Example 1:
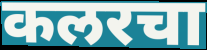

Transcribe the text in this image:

कलरचा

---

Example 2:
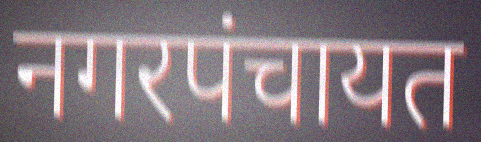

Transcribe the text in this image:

नगरपंचायत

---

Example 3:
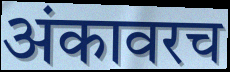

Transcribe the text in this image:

अंकावरच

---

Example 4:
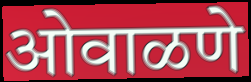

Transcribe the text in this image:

ओवाळणे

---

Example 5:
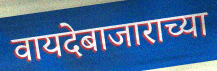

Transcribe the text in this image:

वायदेबाजाराच्या